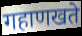
गहाणखते